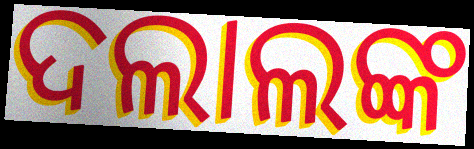
ଦଲାଲଙ୍କ